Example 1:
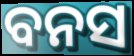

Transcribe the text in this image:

ବନସ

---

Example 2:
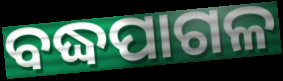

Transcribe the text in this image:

ବଦ୍ଧପାଗଳ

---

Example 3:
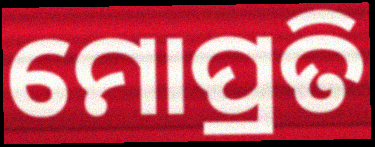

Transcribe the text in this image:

ମୋପ୍ରତି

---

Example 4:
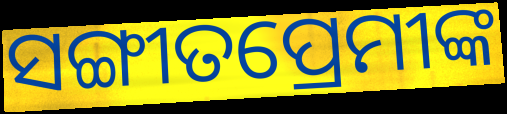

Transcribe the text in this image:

ସଙ୍ଗୀତପ୍ରେମୀଙ୍କ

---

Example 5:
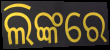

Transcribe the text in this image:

ଲିଙ୍କରେ